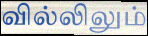
வில்லிலும்